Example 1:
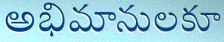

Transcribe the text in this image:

అభిమానులకూ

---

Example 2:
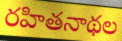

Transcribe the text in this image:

రహితనాథల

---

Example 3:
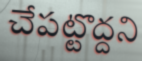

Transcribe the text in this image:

చేపట్టొద్దని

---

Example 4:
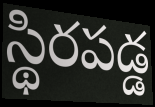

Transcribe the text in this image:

స్థిరపడ్డ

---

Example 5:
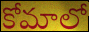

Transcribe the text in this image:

కోమాలో